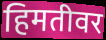
हिमतीवर